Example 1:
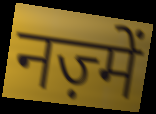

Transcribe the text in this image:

नज़्में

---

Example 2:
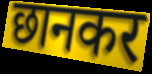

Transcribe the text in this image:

छानकर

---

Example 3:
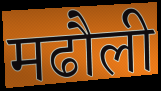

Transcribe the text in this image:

मढौली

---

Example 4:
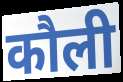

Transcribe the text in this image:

कौली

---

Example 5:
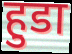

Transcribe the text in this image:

हुडा